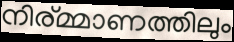
നിര്മ്മാണത്തിലും